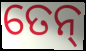
ତେନ୍